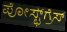
ಪೋಸ್ಟ್‌ಗ್ರೆಸ್